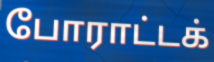
போராட்டக்